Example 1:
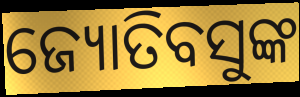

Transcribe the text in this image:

ଜ୍ୟୋତିବସୁଙ୍କ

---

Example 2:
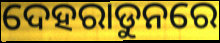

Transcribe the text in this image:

ଦେହରାଡୁନରେ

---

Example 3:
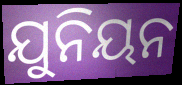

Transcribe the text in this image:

ଯୁନିୟନ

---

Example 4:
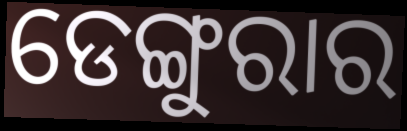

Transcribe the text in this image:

ଡେଙ୍ଗୁରାର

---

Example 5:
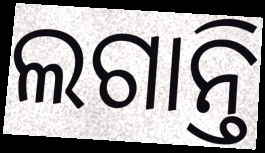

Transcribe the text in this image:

ଲଗାନ୍ତି